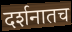
दर्शनातच